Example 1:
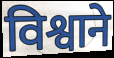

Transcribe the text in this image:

विश्वाने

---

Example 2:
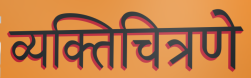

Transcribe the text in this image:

व्यक्तिचित्रणे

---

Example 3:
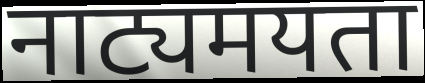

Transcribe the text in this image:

नाट्यमयता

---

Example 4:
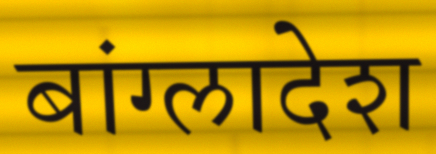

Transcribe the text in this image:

बांग्लादेश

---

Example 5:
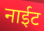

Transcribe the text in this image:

नाईट